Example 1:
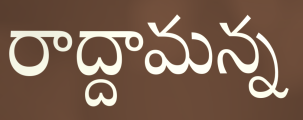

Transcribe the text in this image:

రాద్దామన్న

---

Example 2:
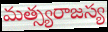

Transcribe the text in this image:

మత్స్యరాజస్య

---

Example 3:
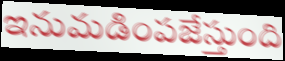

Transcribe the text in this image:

ఇనుమడింపజేస్తుంది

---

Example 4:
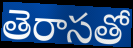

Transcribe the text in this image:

తెరాసతో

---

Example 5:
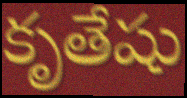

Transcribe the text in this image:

కృతేషు